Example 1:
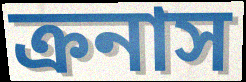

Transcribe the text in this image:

ক্রনাস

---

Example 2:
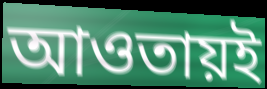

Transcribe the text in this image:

আওতায়ই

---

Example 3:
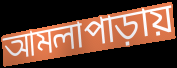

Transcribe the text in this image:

আমলাপাড়ায়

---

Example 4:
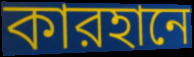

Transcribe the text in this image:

কারহানে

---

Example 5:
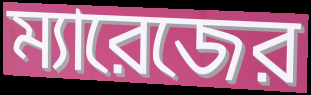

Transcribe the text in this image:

ম্যারেজের